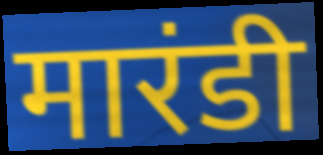
मारंडी